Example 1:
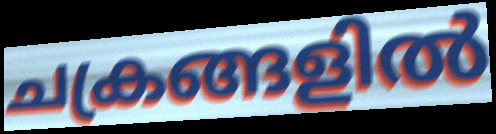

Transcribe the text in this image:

ചക്രങ്ങളിൽ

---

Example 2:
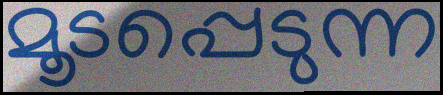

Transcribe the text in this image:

മൂടപ്പെടുന്ന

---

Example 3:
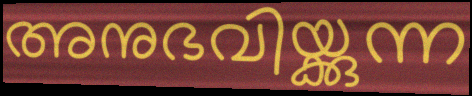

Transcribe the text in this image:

അനുഭവിയ്ക്കുന്ന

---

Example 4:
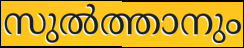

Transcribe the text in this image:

സുൽത്താനും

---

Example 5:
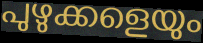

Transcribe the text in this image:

പുഴുക്കളെയും